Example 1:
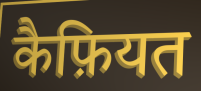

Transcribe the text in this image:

कैफ़ियत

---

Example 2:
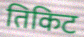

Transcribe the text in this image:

तिकिट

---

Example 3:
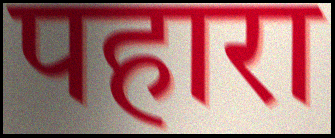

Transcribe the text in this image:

पहारा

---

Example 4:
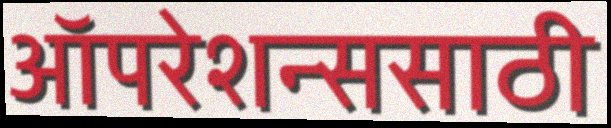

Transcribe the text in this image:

ऑपरेशन्ससाठी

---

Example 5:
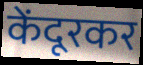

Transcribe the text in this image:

केंदूरकर